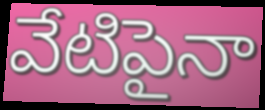
వేటిపైనా